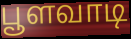
பூளவாடி